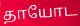
தாயோட